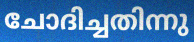
ചോദിച്ചതിന്നു